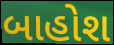
બાહોશ